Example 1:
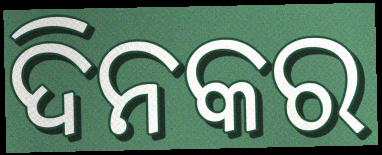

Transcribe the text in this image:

ଦିନକର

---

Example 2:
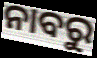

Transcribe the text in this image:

ନାବରୁ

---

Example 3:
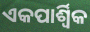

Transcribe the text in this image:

ଏକପାର୍ଶ୍ୱିକ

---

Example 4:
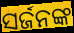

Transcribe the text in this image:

ସର୍ଜନଙ୍କ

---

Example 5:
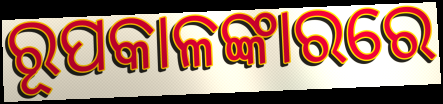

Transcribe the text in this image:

ରୂପକାଳଙ୍କାରରେ